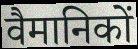
वैमानिकों